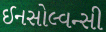
ઈનસોલ્વન્સી